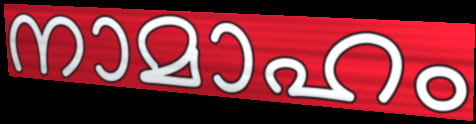
നാമാഹം